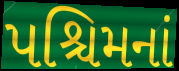
પશ્ચિમનાં